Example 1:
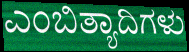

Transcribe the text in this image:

ಎಂಬಿತ್ಯಾದಿಗಳು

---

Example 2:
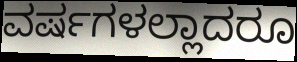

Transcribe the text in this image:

ವರ್ಷಗಳಲ್ಲಾದರೂ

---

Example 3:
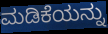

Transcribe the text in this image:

ಮಡಿಕೆಯನ್ನು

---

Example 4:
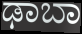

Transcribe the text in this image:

ಢಾಬಾ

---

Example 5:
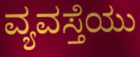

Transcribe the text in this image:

ವ್ಯವಸ್ತೆಯು